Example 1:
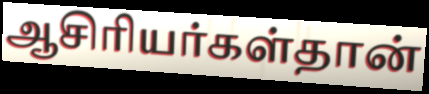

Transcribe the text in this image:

ஆசிரியர்கள்தான்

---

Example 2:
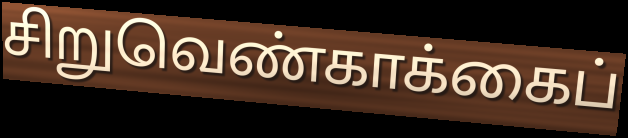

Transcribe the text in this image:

சிறுவெண்காக்கைப்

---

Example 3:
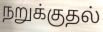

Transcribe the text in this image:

நறுக்குதல்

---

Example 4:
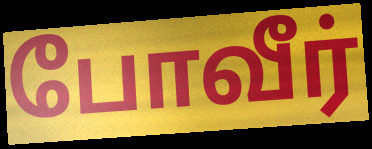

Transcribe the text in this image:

போவீர்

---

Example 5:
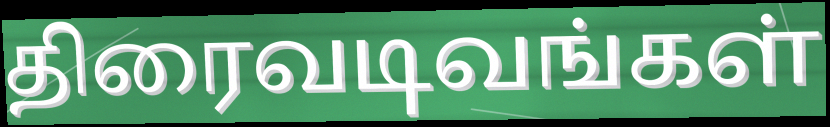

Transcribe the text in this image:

திரைவடிவங்கள்